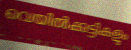
വെയിൽക്കുട്ടികളും